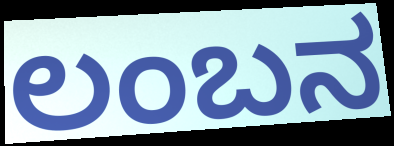
ಲಂಬನ